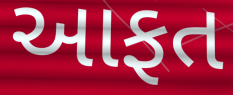
આફત